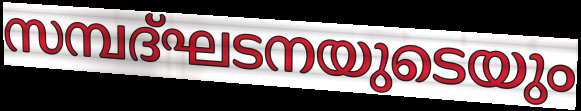
സമ്പദ്ഘടനയുടെയും